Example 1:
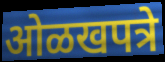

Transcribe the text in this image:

ओळखपत्रे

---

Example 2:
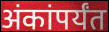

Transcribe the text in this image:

अंकांपर्यंत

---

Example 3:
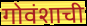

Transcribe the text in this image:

गोवंशाची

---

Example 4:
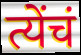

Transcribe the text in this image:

त्येंचं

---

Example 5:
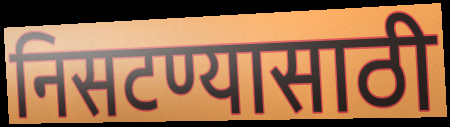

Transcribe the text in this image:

निसटण्यासाठी